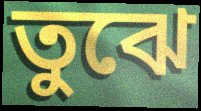
তুঝে